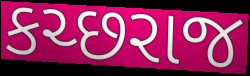
કચ્છરાજ